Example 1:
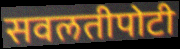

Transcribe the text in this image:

सवलतीपोटी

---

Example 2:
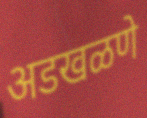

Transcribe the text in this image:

अडखळणे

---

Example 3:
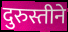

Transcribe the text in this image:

दुरुस्तीने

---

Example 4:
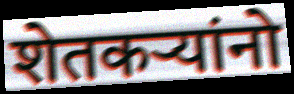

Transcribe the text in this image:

शेतकऱ्यांनो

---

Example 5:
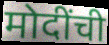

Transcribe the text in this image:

मोदींची